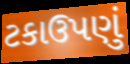
ટકાઉપણું